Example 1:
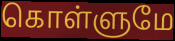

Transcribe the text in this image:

கொள்ளுமே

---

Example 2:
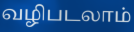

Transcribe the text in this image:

வழிபடலாம்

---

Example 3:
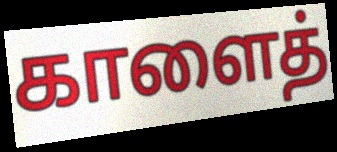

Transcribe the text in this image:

காளைத்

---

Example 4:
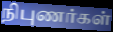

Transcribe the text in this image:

நிபுணர்கள்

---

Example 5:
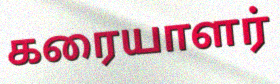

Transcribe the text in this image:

கரையாளர்